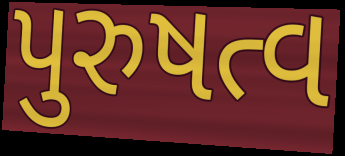
પુરુષત્વ